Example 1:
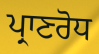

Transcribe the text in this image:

ਪ੍ਰਾਣਰੋਧ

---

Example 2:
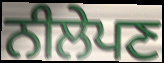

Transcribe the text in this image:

ਨੀਲੇਪਣ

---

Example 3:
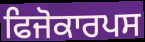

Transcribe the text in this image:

ਫਿਜੋਕਾਰਪਸ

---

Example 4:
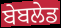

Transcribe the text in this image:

ਬੇਬਲੇਡ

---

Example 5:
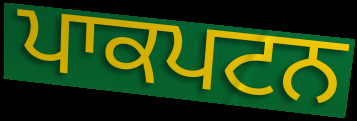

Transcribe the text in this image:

ਪਾਕਪਟਨ